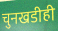
चुनखडीही